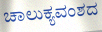
ಚಾಲುಕ್ಯವಂಶದ